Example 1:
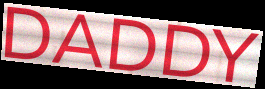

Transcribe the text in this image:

DADDY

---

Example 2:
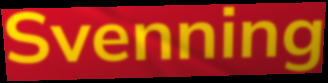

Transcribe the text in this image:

Svenning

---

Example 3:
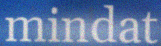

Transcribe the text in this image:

mindat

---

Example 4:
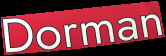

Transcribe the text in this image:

Dorman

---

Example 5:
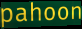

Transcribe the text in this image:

pahoon